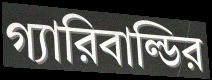
গ্যারিবাল্ডির